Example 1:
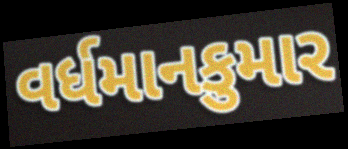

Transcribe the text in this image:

વર્ધમાનકુમાર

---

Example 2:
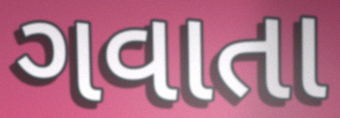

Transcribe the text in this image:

ગવાતા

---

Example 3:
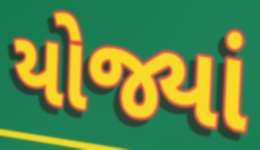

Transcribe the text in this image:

યોજ્યાં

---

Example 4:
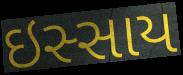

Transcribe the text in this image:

ઇસ્સાય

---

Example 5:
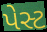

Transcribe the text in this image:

પેસ્ટ